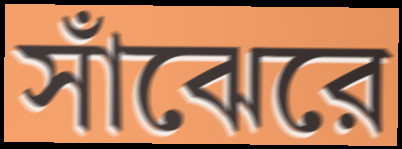
সাঁঝেরে